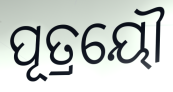
ପୂତ୍ରୟୌ